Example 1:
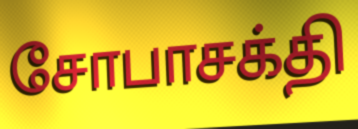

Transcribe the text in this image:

சோபாசக்தி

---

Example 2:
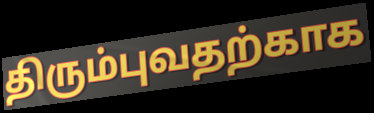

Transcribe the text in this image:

திரும்புவதற்காக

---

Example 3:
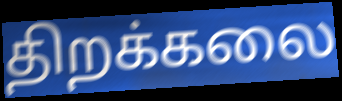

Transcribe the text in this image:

திறக்கலை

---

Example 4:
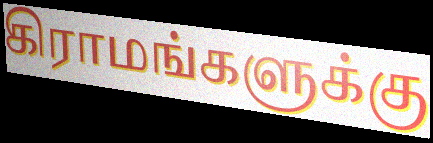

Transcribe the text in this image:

கிராமங்களுக்கு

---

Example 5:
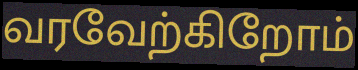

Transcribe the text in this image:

வரவேற்கிறோம்